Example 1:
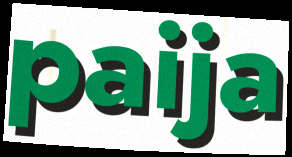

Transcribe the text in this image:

paija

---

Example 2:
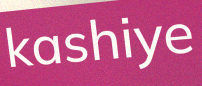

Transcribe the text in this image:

kashiye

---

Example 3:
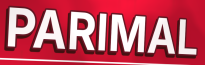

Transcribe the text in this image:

PARIMAL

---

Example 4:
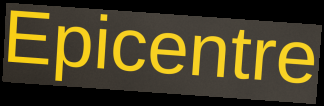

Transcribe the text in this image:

Epicentre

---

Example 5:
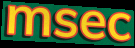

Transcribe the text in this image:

msec